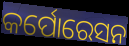
କର୍ପୋରେସନ